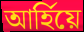
আৰ্হিয়ে